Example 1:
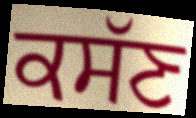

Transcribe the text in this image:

ਕਸੱਣ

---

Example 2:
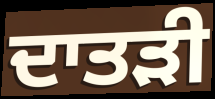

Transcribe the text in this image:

ਦਾਤੜੀ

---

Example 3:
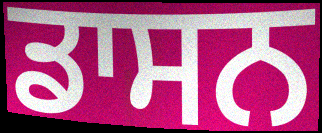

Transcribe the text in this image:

ਡਾਸਨ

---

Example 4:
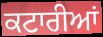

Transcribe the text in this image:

ਕਟਾਰੀਆਂ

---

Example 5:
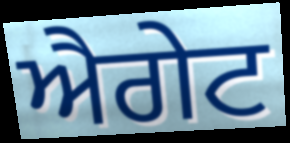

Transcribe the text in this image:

ਐਗੇਟ